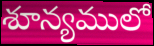
శూన్యములో